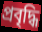
প্রবৃদ্ধি